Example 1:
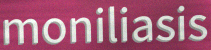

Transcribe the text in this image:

moniliasis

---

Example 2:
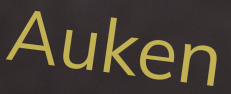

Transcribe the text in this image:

Auken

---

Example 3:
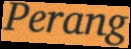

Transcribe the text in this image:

Perang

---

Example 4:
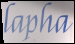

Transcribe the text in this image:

lapha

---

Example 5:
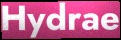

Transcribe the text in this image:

Hydrae